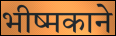
भीष्मकाने